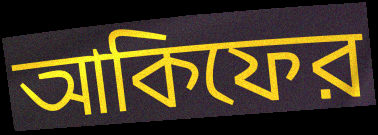
আকিফের